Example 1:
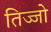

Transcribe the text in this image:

तिज्जो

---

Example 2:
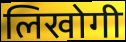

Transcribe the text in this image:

लिखोगी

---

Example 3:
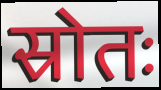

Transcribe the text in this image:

स्रोतः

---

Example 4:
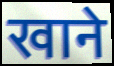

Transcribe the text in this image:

खाने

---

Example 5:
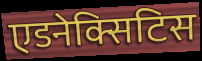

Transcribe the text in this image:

एडनेक्सिटिस